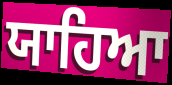
ਯਾਹਿਆ